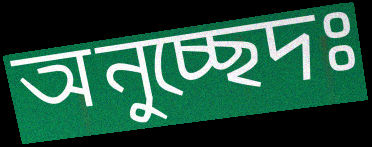
অনুচ্ছেদঃ